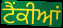
ਟੈਂਕੀਆਂ